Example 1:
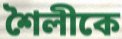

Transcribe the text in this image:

শৈলীকে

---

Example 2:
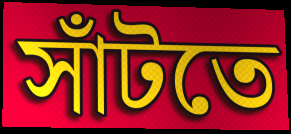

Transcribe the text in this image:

সাঁটতে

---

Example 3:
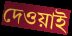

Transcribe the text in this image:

দেওয়াই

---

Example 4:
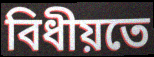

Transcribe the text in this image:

বিধীয়তে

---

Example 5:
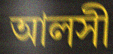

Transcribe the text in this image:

আলসী